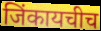
जिंकायचीच